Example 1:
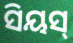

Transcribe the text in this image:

ସିୟସ୍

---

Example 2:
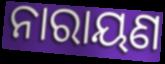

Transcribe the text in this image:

ନାରାୟଣ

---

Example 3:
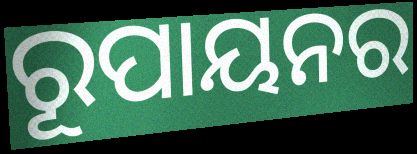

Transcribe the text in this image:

ରୂପାୟନର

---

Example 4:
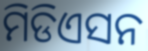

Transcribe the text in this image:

ମିଡିଏସନ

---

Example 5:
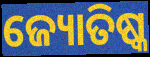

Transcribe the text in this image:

ଜ୍ୟୋତିଷ୍କ